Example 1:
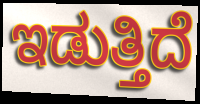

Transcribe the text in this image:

ಇಡುತ್ತಿದೆ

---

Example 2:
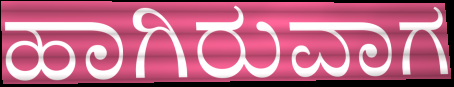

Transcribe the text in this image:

ಹಾಗಿರುವಾಗ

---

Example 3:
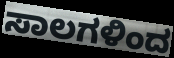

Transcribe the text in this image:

ಸಾಲಗಳಿಂದ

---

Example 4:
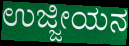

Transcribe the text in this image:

ಉಜ್ಜೀಯನ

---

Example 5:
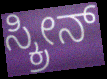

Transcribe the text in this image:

ಸ್ಕ್ರೀನ್